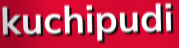
kuchipudi